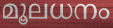
മൂലധനം